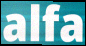
alfa